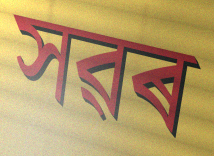
সৱৰ